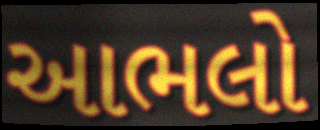
આભલો